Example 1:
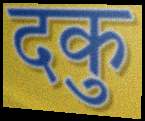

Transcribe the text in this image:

दकु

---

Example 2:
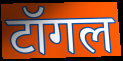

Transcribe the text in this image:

टॉगल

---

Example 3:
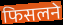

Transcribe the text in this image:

फिसलने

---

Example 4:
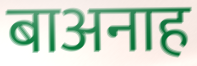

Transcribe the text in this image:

बाअनाह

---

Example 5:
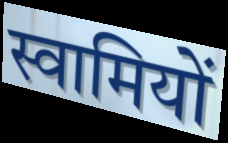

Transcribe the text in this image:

स्वामियों